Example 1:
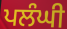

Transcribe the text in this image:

ਪਲੰਘੀ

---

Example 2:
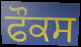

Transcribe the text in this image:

ਫੌਕਸ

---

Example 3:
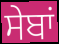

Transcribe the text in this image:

ਸੇਬਾਂ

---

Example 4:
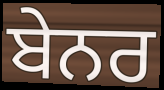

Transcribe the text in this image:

ਬੇਨਰ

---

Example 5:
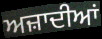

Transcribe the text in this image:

ਅਜ਼ਾਦੀਆਂ